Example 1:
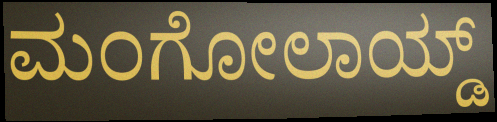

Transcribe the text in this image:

ಮಂಗೋಲಾಯ್ಡ್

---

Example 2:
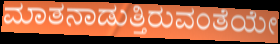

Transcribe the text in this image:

ಮಾತನಾಡುತ್ತಿರುವಂತೆಯೇ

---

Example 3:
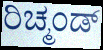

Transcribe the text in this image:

ರಿಚ್ಮಂಡ್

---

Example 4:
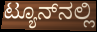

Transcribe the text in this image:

ಟ್ಯೂನ್‌ನಲ್ಲಿ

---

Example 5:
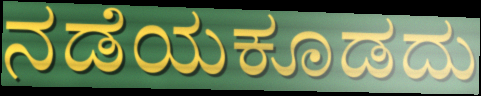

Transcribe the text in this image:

ನಡೆಯಕೂಡದು